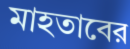
মাহতাবের